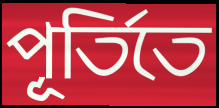
পূর্তিতে